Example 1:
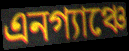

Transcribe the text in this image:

এনগ্যাঞ্চে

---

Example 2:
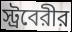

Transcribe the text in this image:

স্ট্রবেরীর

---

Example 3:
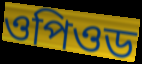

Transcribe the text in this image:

ওপিওড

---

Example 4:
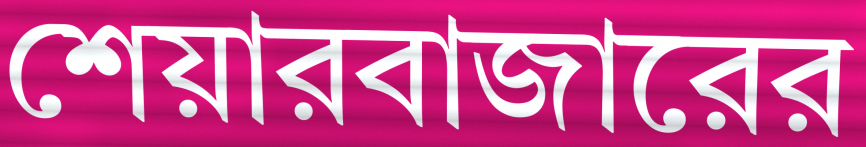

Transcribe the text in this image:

শেয়ারবাজারের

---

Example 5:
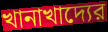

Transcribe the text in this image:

খানাখাদ্যের